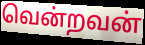
வென்றவன்